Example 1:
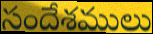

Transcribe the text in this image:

సందేశములు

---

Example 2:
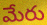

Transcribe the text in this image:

మేరు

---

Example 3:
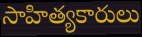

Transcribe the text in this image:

సాహిత్యకారులు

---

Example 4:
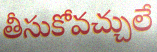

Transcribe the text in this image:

తీసుకోవచ్చులే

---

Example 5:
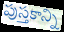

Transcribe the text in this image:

పుస్తకాన్ని